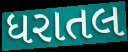
ધરાતલ